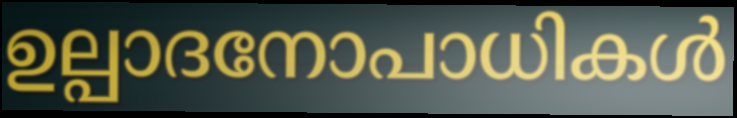
ഉല്പാദനോപാധികൾ